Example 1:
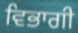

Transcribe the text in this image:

ਵਿਭਾਗੀ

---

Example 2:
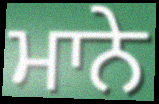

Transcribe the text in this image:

ਮਾਨੇ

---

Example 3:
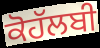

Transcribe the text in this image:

ਕੋਹੱਲਬੀ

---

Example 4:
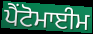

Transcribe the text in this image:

ਪੈਂਟੋਮਾਈਮ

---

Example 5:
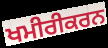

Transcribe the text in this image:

ਖਮੀਰੀਕਰਨ